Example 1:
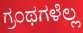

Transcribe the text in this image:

ಗ್ರಂಥಗಳೆಲ್ಲ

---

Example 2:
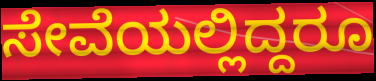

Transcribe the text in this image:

ಸೇವೆಯಲ್ಲಿದ್ದರೂ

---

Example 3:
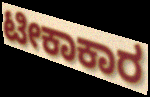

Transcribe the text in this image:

ಟೀಕಾಕಾರ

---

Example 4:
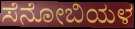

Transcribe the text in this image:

ಸೆನೋಬಿಯಳ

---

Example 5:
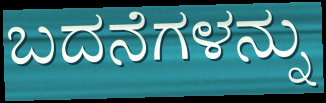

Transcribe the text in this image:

ಬದನೆಗಳನ್ನು